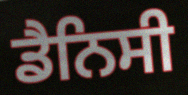
ਡੈਨਿਸੀ